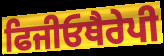
ਫਿਜੀਓਥੈਰੇਪੀ